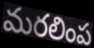
మరలింప